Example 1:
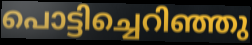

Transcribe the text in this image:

പൊട്ടിച്ചെറിഞ്ഞു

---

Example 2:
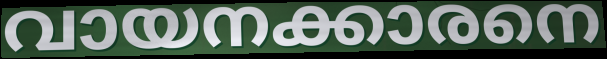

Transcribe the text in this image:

വായനക്കാരനെ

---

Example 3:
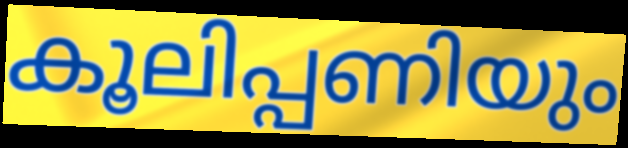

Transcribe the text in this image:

കൂലിപ്പണിയും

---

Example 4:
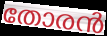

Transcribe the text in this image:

തോരൻ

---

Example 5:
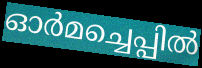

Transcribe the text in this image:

ഓർമച്ചെപ്പിൽ